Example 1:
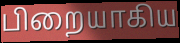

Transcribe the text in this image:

பிறையாகிய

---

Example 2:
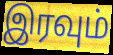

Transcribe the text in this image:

இரவும்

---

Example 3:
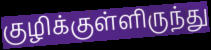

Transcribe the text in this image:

குழிக்குள்ளிருந்து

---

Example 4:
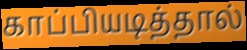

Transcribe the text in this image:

காப்பியடித்தால்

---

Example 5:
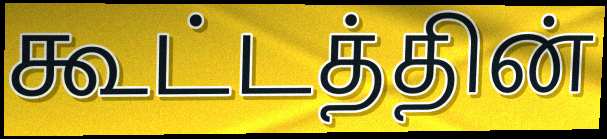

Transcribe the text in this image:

கூட்டத்தின்